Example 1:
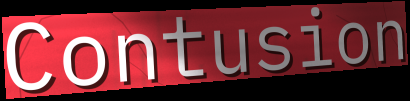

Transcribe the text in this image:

Contusion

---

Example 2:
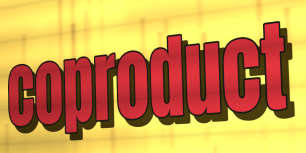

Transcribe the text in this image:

coproduct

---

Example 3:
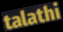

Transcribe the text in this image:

talathi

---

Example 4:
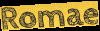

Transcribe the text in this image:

Romae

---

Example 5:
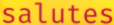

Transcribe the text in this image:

salutes